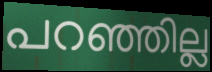
പറഞ്ഞില്ല